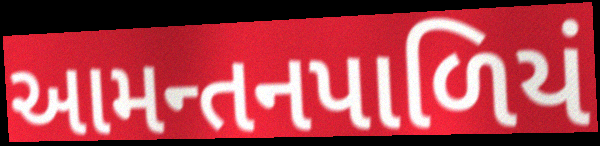
આમન્તનપાળિયં